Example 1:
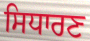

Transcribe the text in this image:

ਸਿਧਾਰਣ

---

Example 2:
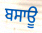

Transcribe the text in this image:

ਬਸਾਊ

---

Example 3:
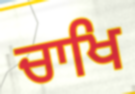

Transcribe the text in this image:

ਚਾਖਿ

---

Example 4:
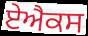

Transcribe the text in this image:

ਏਐਕਸ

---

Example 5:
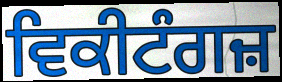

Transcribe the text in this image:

ਵਿਕੀਟੰਗਜ਼